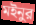
মইনুর